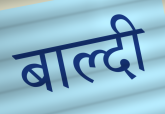
बाल्दी